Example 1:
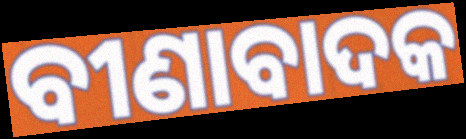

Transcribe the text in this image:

ବୀଣାବାଦକ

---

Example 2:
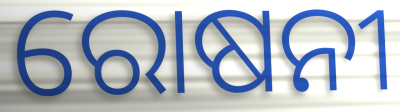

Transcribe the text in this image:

ରୋଷନୀ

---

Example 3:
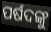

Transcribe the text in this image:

ପର୍ଷଦଙ୍କୁ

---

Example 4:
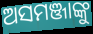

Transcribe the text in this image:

ଅସମଞ୍ଜାଙ୍କୁ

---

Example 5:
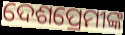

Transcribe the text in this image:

ଦେଶପ୍ରେମୀଙ୍କ